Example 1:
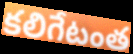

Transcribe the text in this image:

కలిగేటంత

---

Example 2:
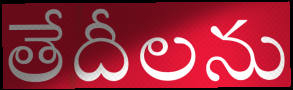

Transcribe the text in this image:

తేదీలను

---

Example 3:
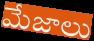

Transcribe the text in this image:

మేజాలు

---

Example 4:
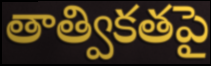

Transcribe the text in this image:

తాత్వికతపై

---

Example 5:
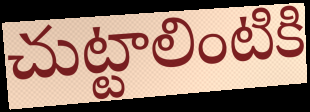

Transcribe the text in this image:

చుట్టాలింటికి